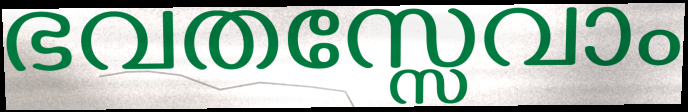
ഭവതസ്സേവാം